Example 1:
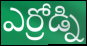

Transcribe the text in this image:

ఎర్రోడ్ని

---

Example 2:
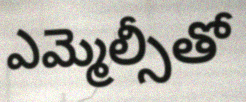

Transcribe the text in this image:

ఎమ్మెల్సీతో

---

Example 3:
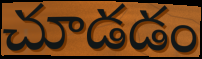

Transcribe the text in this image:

చూడడం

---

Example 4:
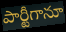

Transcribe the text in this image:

పార్టీగానూ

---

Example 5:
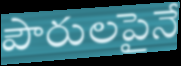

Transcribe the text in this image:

పౌరులపైనే